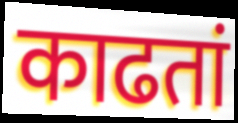
काढतां